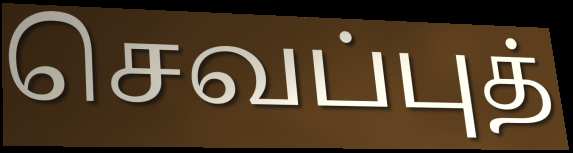
செவப்புத்